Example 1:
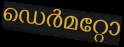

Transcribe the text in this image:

ഡെർമറ്റോ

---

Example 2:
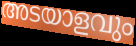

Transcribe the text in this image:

അടയാളവും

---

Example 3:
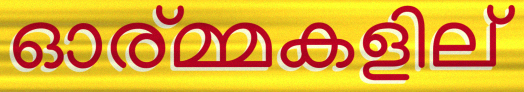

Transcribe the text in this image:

ഓര്മ്മകളില്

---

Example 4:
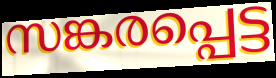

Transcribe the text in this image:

സങ്കരപ്പെട്ട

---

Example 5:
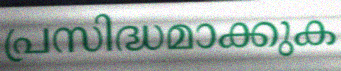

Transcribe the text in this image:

പ്രസിദ്ധമാക്കുക